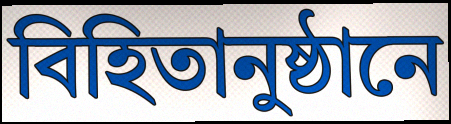
বিহিতানুষ্ঠানে